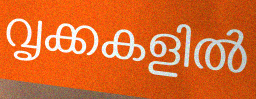
വൃക്കകളിൽ